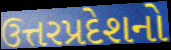
ઉત્તરપ્રદેશનો